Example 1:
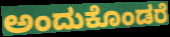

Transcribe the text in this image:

ಅಂದುಕೊಂಡರೆ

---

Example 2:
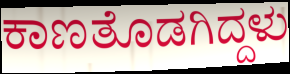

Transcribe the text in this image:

ಕಾಣತೊಡಗಿದ್ದಳು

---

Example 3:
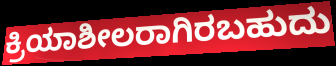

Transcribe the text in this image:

ಕ್ರಿಯಾಶೀಲರಾಗಿರಬಹುದು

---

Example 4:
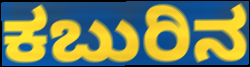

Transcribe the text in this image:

ಕಬುರಿನ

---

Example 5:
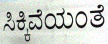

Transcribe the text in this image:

ಸಿಕ್ಕಿವೆಯಂತೆ